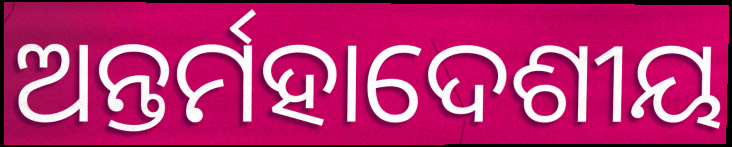
ଅନ୍ତର୍ମହାଦେଶୀୟ